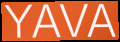
YAVA